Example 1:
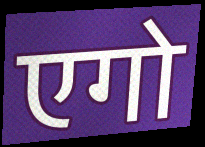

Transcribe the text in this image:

एगो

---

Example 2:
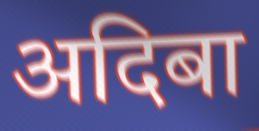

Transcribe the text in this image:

अदिबा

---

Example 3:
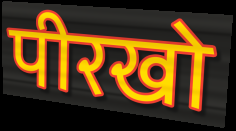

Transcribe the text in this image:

पीरखो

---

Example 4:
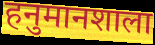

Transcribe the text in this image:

हनुमानशाला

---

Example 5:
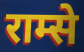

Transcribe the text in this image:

राम्से